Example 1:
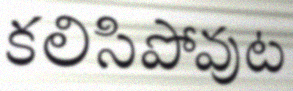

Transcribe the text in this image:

కలిసిపోవుట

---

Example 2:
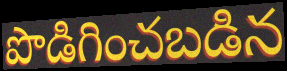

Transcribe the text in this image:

పొడిగించబడిన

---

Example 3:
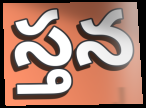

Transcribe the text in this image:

స్తన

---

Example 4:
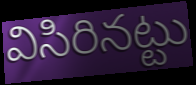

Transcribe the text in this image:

విసిరినట్టు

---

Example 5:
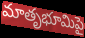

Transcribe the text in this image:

మాతృభూమిపై